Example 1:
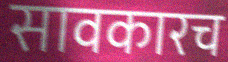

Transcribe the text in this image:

सावकारच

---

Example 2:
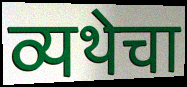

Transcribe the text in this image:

व्यथेचा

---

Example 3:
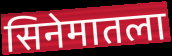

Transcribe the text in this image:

सिनेमातला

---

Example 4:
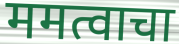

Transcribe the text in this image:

ममत्वाचा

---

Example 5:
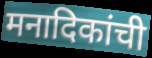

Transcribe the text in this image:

मनादिकांची